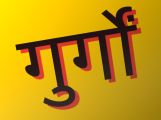
गुर्गों